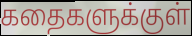
கதைகளுக்குள்